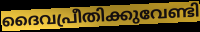
ദൈവപ്രീതിക്കുവേണ്ടി